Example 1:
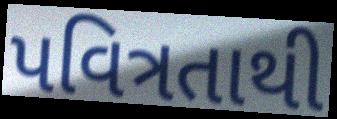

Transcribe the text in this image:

પવિત્રતાથી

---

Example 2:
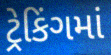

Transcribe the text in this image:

ટ્રેકિંગમાં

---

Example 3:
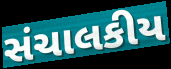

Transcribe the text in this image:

સંચાલકીય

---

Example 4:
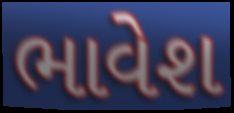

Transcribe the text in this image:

ભાવેશ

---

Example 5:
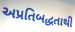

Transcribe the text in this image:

અપ્રતિબદ્ધતાથી